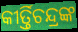
କୀର୍ତ୍ତିଚନ୍ଦ୍ରଙ୍କ